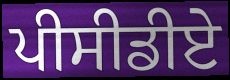
ਪੀਸੀਡੀਏ